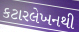
કટારલેખનથી